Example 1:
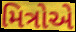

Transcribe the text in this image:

મિત્રોએ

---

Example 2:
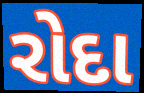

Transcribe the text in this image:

રોદા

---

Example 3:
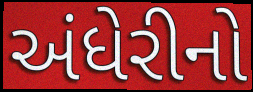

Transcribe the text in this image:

અંધેરીનો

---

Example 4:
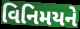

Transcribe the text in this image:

વિનિમયને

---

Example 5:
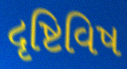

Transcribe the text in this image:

દૃષ્ટિવિષ